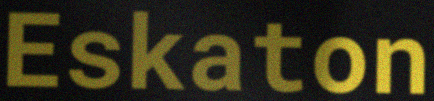
Eskaton